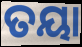
ତୟା